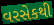
વરસેકથી